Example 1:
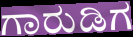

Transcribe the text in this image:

ಗಾರುಡಿಗ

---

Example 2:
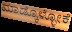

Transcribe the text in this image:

ಮಾಡ್ಕೊಳ್ಳೋಕೆ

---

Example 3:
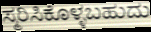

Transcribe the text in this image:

ಸ್ಮರಿಸಿಕೊಳ್ಳಬಹುದು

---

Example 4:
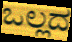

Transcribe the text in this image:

ಒಲ್ಲದ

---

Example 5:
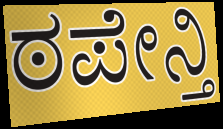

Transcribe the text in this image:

ಠಪೇನ್ತಿ